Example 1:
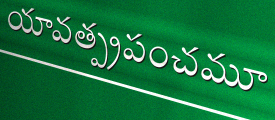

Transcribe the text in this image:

యావత్ప్రపంచమూ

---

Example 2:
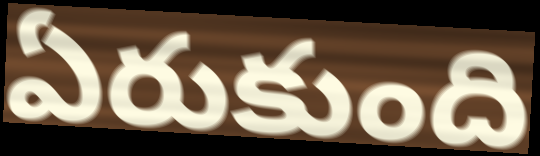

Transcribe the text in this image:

ఏరుకుంది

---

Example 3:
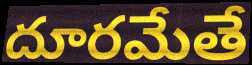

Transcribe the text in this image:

దూరమేతే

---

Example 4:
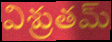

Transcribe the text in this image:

విశ్రుతమ్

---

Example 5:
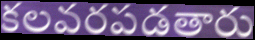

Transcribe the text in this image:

కలవరపడతారు